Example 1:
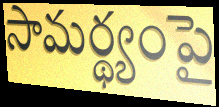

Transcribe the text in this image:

సామర్థ్యంపై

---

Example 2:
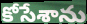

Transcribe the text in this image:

కోసేశాను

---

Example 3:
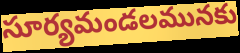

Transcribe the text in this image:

సూర్యమండలమునకు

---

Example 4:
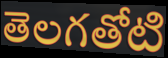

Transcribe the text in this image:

తెలగతోటి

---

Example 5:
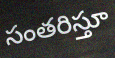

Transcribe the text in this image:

సంతరిస్తూ